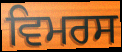
ਵਿਮਰਸ